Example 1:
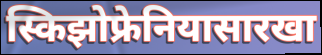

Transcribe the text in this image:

स्किझोफ्रेनियासारखा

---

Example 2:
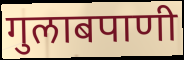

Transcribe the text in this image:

गुलाबपाणी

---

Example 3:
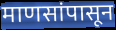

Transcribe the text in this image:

माणसांपासून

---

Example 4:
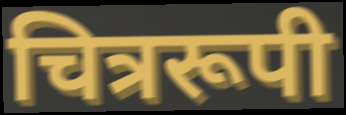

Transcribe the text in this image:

चित्ररूपी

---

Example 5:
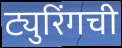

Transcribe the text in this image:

ट्युरिंगची